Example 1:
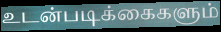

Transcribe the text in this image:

உடன்படிக்கைகளும்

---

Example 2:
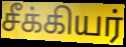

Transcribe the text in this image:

சீக்கியர்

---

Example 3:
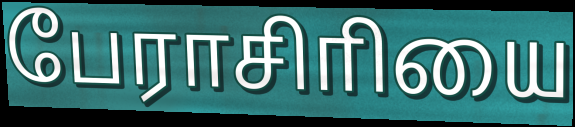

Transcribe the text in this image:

பேராசிரியை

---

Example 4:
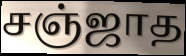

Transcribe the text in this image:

சஞ்ஜாத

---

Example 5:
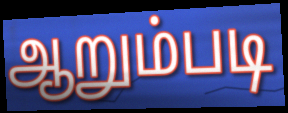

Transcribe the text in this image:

ஆறும்படி